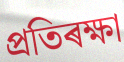
প্ৰতিৰক্ষা